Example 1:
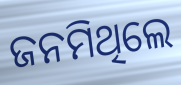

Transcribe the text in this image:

ଜନମିଥିଲେ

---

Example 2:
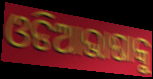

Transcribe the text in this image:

ଓଡିଆଭାଷାକୁ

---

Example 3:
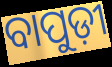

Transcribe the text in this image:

ବାପୁଡ଼ୀ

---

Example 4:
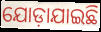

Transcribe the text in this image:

ଯୋଡ଼ାଯାଇଛି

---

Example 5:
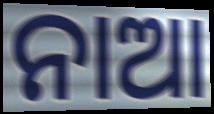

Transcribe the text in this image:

ନାଆ